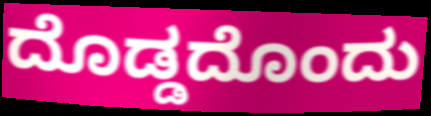
ದೊಡ್ಡದೊಂದು